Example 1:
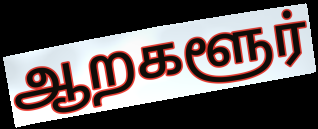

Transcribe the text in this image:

ஆறகளூர்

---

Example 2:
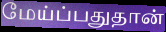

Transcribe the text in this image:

மேய்ப்பதுதான்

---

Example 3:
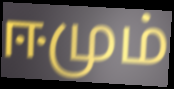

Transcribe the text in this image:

ஈமும்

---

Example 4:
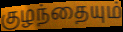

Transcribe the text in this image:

குழந்தையும்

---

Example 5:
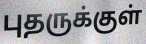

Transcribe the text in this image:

புதருக்குள்